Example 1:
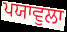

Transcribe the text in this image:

ਪਯਾਵੁਲਾ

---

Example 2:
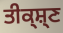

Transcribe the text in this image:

ਤੀਕ੍ਸ਼੍ਣ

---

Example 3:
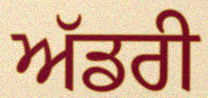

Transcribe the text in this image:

ਅੱਡਰੀ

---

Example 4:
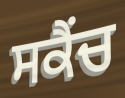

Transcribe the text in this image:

ਸਕੈਂਚ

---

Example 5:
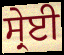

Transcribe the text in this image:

ਸ੍ਰੇਈ